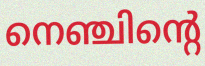
നെഞ്ചിന്റെ